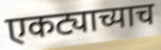
एकट्याच्याच